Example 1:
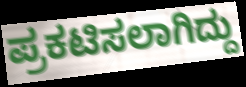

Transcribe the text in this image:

ಪ್ರಕಟಿಸಲಾಗಿದ್ದು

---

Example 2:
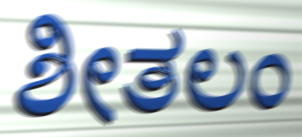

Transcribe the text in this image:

ಶೀತಲಂ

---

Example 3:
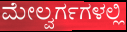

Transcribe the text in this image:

ಮೇಲ್ವರ್ಗಗಳಲ್ಲಿ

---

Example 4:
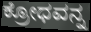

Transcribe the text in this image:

ಕ್ರೋಧವನ್ನ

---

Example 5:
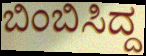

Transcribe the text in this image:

ಬಿಂಬಿಸಿದ್ದ